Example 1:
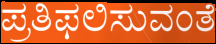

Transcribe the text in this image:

ಪ್ರತಿಫಲಿಸುವಂತೆ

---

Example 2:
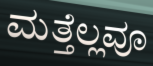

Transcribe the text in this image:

ಮತ್ತೆಲ್ಲವೂ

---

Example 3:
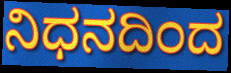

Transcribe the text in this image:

ನಿಧನದಿಂದ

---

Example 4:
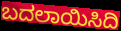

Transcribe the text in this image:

ಬದಲಾಯಿಸಿದಿ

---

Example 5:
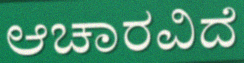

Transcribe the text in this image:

ಆಚಾರವಿದೆ